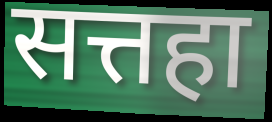
सत्तहा